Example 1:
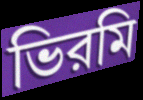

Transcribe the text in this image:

ভিরমি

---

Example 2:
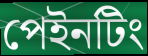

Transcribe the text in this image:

পেইনটিং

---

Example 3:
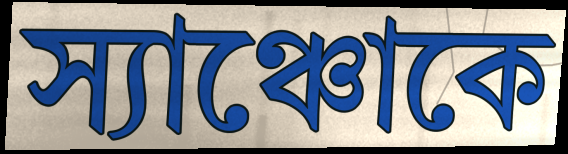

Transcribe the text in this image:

স্যাঞ্চোকে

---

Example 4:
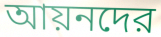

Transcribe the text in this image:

আয়নদের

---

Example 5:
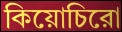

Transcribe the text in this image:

কিয়োচিরো